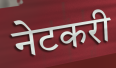
नेटकरी